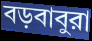
বড়বাবুরা